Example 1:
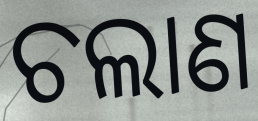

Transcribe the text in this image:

ଚଲାଣ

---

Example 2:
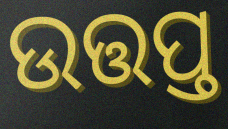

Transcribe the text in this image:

ଉତ୍ତପ୍ତ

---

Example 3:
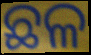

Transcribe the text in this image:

ଛଳ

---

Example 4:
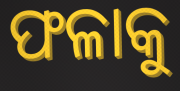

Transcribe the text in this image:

ଫଳାକୁ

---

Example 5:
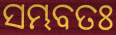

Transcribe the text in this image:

ସମ୍ଭବତଃ